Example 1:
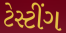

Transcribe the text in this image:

ટેસ્ટીંગ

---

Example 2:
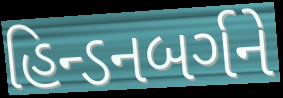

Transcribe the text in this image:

હિન્ડનબર્ગને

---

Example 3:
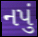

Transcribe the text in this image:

નપું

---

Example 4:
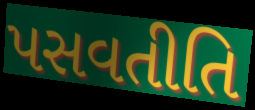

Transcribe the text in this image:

પસવતીતિ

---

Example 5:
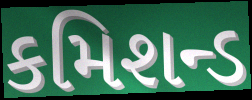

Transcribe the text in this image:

કમિશન્ડ